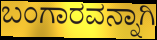
ಬಂಗಾರವನ್ನಾಗಿ